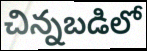
చిన్నబడిలో